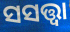
ସସତ୍ତ୍ୱା